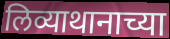
लिव्याथानाच्या